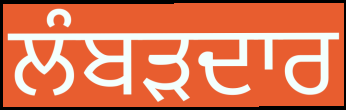
ਲੰਬੜਦਾਰ